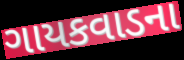
ગાયકવાડના